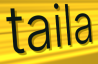
taila